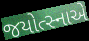
જયોત્સ્નાએ